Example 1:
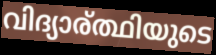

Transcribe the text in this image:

വിദ്യാര്ത്ഥിയുടെ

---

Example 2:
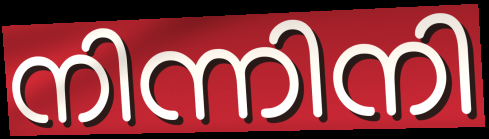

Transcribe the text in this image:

നിന്നിനി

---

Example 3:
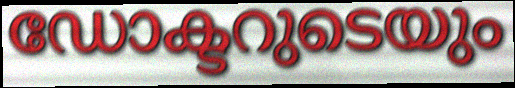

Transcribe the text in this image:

ഡോക്ടറുടെയും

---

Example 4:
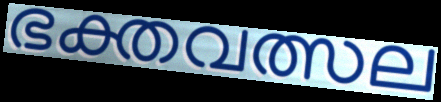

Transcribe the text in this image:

ഭക്തവത്സല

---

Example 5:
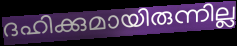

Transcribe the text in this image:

ദഹിക്കുമായിരുന്നില്ല